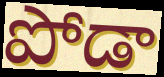
పోడా